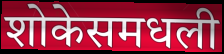
शोकेसमधली